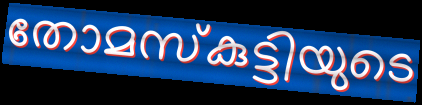
തോമസ്കുട്ടിയുടെ